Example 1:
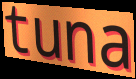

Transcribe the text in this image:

tuna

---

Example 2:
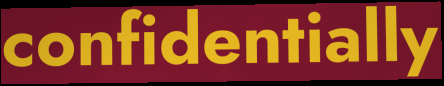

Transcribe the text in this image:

confidentially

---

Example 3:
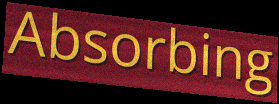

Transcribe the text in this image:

Absorbing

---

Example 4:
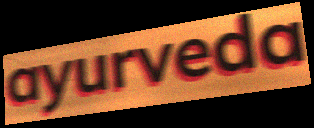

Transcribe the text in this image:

ayurveda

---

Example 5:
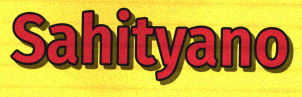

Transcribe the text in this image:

Sahityano